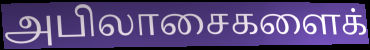
அபிலாசைகளைக்